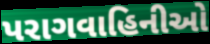
પરાગવાહિનીઓ